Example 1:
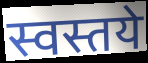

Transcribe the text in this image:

स्वस्तये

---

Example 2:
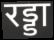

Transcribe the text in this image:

रड्डा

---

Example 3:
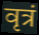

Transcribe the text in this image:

वृत्रं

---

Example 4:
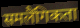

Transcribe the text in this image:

समलैंगिकता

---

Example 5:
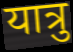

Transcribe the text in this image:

यात्रु